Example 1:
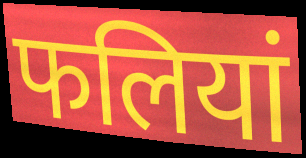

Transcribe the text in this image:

फलियां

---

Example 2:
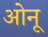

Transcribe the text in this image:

ओनू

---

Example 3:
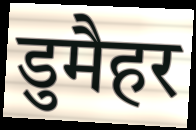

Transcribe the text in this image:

डुमैहर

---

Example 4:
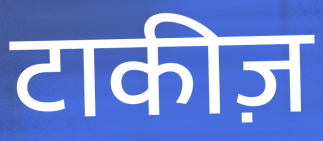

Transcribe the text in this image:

टाकीज़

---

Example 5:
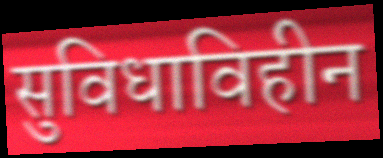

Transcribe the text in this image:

सुविधाविहीन